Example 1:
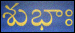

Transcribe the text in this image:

శుభాః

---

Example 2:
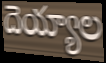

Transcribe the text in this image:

దెయ్యాల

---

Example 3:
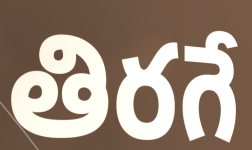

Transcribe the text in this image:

తిరగే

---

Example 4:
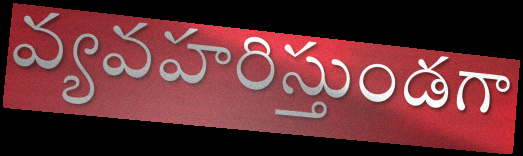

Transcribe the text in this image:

వ్యవహరిస్తుండగా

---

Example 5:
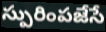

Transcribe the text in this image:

స్పురింపజేసే